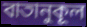
বাতানুকূল